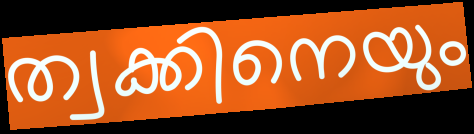
ത്വക്കിനെയും